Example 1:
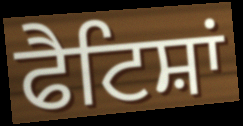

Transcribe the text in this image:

ਫੈਟਿਸ਼ਾਂ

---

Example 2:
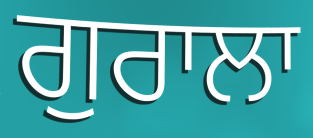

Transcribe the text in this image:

ਗੁਰਾਲਾ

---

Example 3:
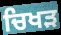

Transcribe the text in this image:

ਚਿਖੜ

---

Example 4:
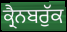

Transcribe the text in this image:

ਕ੍ਰੈਨਬਰੁੱਕ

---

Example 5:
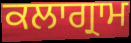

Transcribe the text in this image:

ਕਲਾਗ੍ਰਾਮ